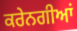
ਕਰੇਨਗੀਆਂ